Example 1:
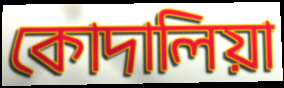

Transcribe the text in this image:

কোদালিয়া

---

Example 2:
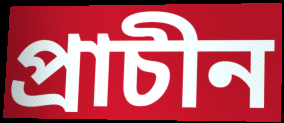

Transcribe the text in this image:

প্রাচীন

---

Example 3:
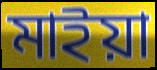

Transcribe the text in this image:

মাইয়া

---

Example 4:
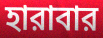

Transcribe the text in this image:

হারাবার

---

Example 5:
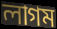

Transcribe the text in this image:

লাগম